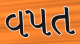
વપત